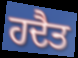
ਹਦੈਤ